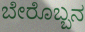
ಬೇರೊಬ್ಬನ